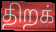
திறக்